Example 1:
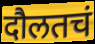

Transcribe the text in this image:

दौलतचं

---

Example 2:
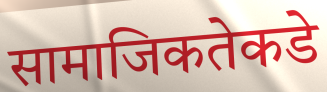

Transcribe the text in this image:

सामाजिकतेकडे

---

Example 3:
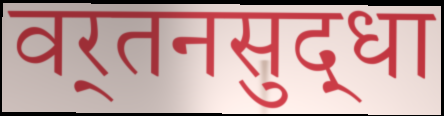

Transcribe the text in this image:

वर्तनसुद्धा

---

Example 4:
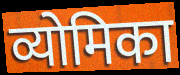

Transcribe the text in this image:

व्योमिका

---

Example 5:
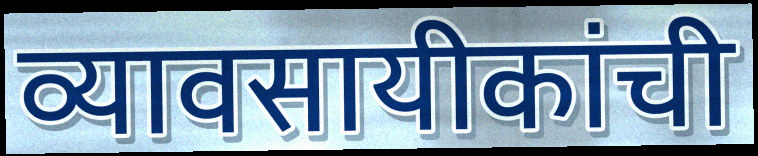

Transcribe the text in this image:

व्यावसायीकांची